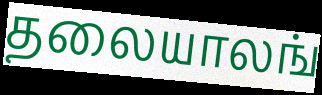
தலையாலங்